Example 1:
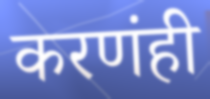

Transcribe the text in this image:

करणंही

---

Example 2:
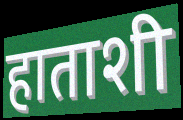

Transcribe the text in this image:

हाताशी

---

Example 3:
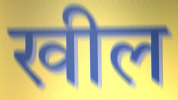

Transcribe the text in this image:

खील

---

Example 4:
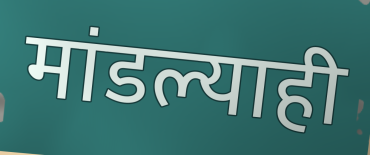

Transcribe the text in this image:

मांडल्याही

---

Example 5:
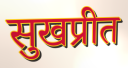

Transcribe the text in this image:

सुखप्रीत